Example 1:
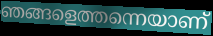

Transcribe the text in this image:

ഞങ്ങളെത്തന്നെയാണ്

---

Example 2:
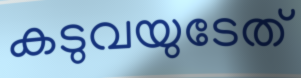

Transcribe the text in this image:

കടുവയുടേത്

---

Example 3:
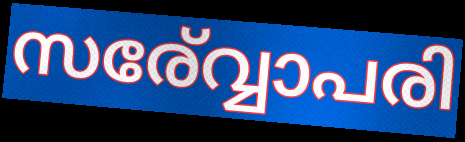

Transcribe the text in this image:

സര്വ്വോപരി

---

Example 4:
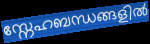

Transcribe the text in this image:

സ്നേഹബന്ധങ്ങളിൽ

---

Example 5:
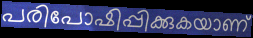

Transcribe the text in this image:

പരിപോഷിപ്പിക്കുകയാണ്